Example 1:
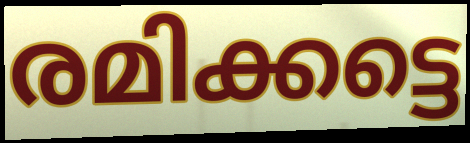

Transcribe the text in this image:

രമിക്കട്ടെ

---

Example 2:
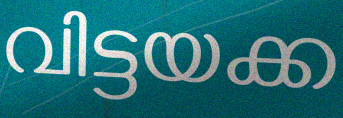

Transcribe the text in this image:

വിട്ടയക്ക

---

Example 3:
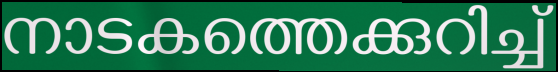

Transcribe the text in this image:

നാടകത്തെക്കുറിച്ച്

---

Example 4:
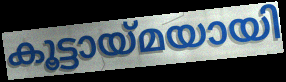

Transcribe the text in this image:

കൂട്ടായ്മയായി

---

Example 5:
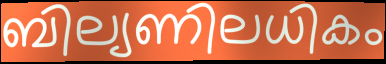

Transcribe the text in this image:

ബില്യണിലധികം